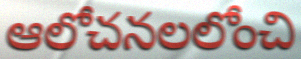
ఆలోచనలలోంచి